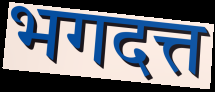
भगदत्त